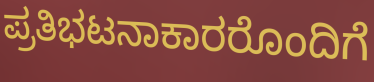
ಪ್ರತಿಭಟನಾಕಾರರೊಂದಿಗೆ